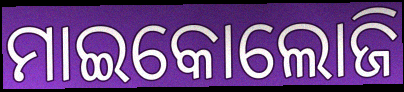
ମାଇକୋଲୋଜି